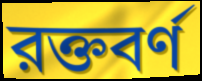
রক্তবর্ণ